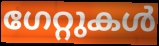
ഗേറ്റുകൾ